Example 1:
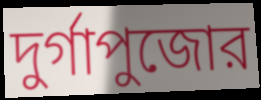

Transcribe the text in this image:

দুর্গাপুজোর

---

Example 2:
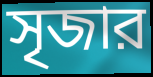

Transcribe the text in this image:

সৃজার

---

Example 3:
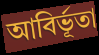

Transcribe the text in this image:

আবির্ভূতা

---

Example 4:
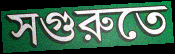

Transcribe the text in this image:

সগুরুতে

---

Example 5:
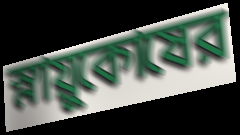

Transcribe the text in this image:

স্নায়ুকোষের